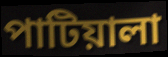
পাটিয়ালা